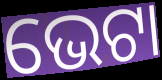
ଭେଟା